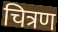
चित्रण